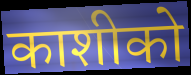
काशीको